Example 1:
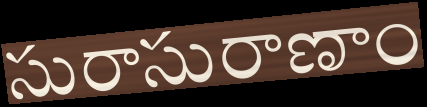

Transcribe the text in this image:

సురాసురాణాం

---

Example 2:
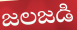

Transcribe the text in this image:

జలజడి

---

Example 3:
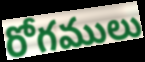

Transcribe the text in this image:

రోగములు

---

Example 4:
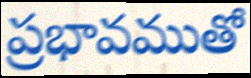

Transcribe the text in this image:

ప్రభావముతో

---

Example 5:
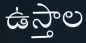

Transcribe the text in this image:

ఉస్తాల